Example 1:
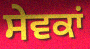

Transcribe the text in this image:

ਸੇਵਕਾਂ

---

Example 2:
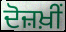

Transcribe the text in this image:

ਦੋਜ਼ਖ਼ੀਂ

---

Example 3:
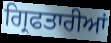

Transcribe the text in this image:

ਗ੍ਰਿਫਤਾਰੀਆਂ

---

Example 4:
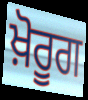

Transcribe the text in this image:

ਖ਼ੋਰੂਗ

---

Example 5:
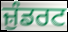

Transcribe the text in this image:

ਜ਼ੁੰਡਰਟ